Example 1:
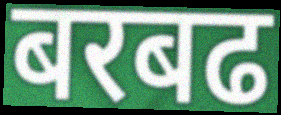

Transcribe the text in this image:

बरबढ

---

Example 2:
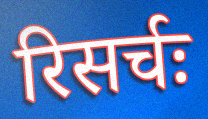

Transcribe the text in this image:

रिसर्चः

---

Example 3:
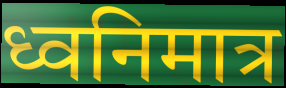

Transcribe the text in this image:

ध्वनिमात्र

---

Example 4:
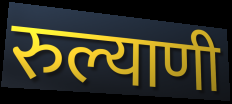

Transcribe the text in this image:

रुल्याणी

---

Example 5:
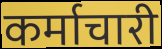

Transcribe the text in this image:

कर्माचारी